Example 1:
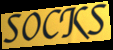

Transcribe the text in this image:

SOCKS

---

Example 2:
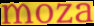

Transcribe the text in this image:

moza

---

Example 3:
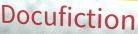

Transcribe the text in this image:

Docufiction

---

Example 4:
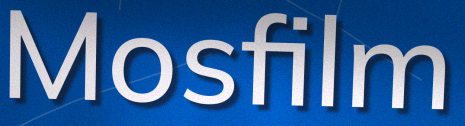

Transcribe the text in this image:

Mosfilm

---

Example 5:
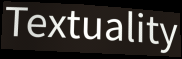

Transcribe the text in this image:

Textuality